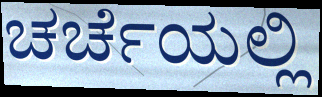
ಚರ್ಚೆಯಲ್ಲಿ